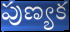
పుణ్యక